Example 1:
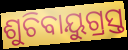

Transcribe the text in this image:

ଶୁଚିବାୟୁଗ୍ରସ୍ତ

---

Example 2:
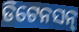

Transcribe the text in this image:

ଡିଟେନସନ୍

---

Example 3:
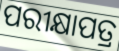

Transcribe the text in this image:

ପରୀକ୍ଷାପତ୍ର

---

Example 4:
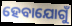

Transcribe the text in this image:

ହେବାଯୋଗୁଁ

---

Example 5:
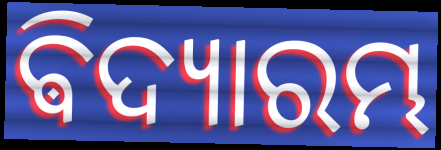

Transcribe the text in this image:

ଵିଦ୍ୟାରମ୍ଭ